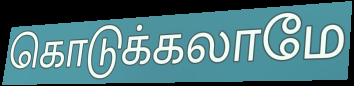
கொடுக்கலாமே